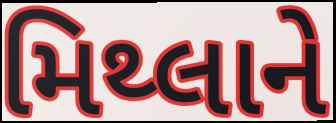
મિથ્લાને